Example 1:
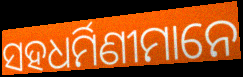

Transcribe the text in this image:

ସହଧର୍ମିଣୀମାନେ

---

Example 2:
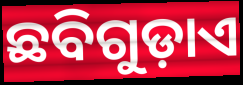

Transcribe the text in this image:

ଛବିଗୁଡ଼ାଏ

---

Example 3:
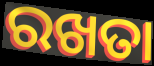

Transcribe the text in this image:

ରଖତା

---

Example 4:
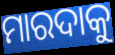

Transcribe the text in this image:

ମାରଦାକୁ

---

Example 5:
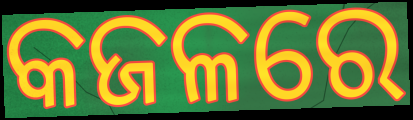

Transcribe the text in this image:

କଜଳରେ